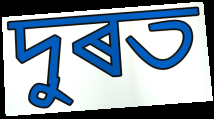
দুৰত